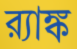
র‍্যাঙ্ক